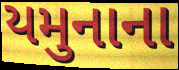
યમુનાના